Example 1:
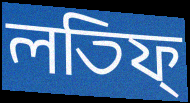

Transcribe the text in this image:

লতিফ্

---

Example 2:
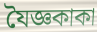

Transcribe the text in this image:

যৈজ্ঞকাকা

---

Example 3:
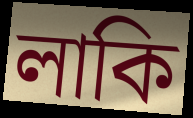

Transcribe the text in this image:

লাকি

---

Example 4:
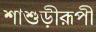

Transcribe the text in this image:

শাশুড়ীরূপী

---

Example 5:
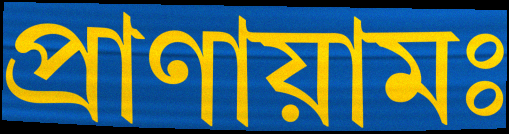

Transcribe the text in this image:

প্রাণায়ামঃ